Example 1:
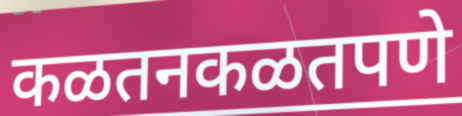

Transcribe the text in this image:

कळतनकळतपणे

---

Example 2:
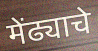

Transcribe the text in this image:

मेंढ्याचे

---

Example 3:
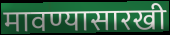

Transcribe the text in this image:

मावण्यासारखी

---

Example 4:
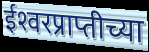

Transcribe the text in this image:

ईश्वरप्राप्तीच्या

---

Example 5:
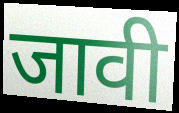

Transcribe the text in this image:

जावी